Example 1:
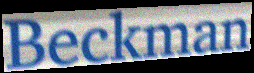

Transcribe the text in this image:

Beckman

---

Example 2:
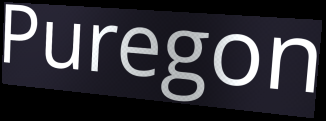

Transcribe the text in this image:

Puregon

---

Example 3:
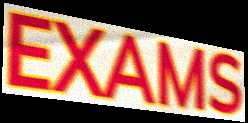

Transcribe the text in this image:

EXAMS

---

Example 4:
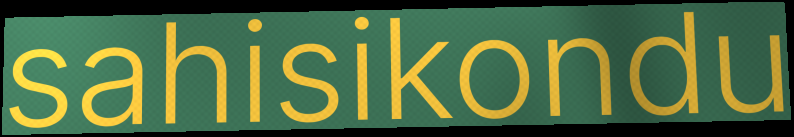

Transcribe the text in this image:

sahisikondu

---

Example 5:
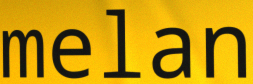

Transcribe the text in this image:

melan